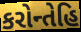
કરોન્તેહિ